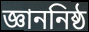
জ্ঞাননিষ্ঠ